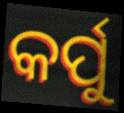
କର୍ପୁ